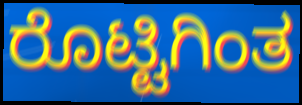
ರೊಟ್ಟಿಗಿಂತ